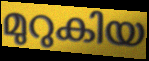
മുറുകിയ